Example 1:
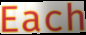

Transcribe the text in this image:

Each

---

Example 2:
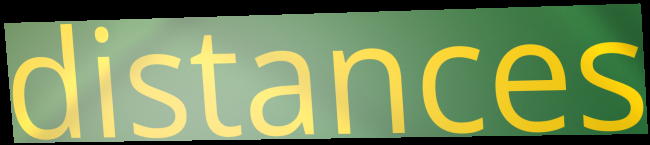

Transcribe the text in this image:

distances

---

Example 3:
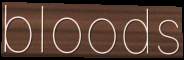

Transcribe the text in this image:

bloods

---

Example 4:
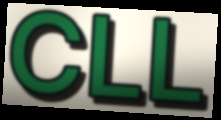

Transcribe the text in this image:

CLL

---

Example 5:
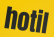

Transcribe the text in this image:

hotil